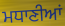
ਮਧਾਣੀਆਂ